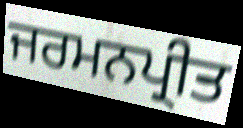
ਜਰਮਨਪ੍ਰੀਤ